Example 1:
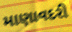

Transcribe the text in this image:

માણાવદરી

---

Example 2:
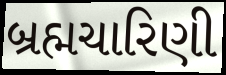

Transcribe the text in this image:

બ્રહ્મચારિણી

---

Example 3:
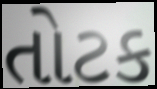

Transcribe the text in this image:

તોટક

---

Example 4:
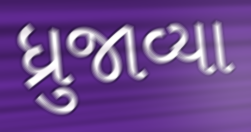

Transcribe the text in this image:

ધ્રુજાવ્યા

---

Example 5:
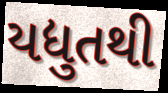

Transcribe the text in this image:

યદ્યુતથી